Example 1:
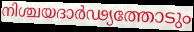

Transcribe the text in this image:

നിശ്ചയദാർഢ്യത്തോടും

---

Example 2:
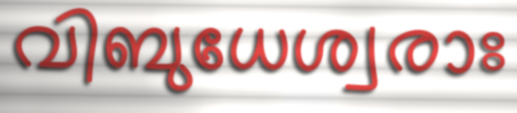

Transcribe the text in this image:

വിബുധേശ്വരാഃ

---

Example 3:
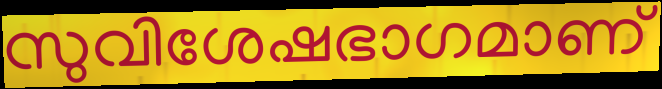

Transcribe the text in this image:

സുവിശേഷഭാഗമാണ്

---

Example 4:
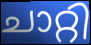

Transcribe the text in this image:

ചാറ്റി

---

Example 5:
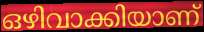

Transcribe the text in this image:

ഒഴിവാക്കിയാണ്